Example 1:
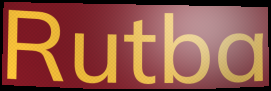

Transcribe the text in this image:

Rutba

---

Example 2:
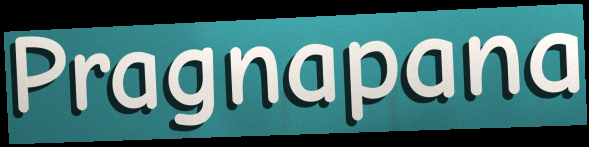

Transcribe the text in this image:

Pragnapana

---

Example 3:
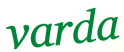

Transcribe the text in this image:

varda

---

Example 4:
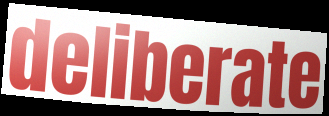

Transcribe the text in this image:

deliberate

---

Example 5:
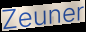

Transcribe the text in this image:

Zeuner